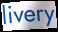
livery